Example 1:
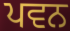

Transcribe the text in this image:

ਪਵਨ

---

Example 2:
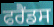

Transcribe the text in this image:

ਫਰੈਂਡਸ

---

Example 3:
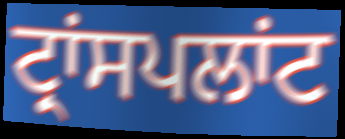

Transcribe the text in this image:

ਟ੍ਰਾਂਸਪਲਾਂਟ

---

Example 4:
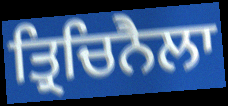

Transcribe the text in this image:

ਤ੍ਰਿਚਿਨੈਲਾ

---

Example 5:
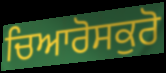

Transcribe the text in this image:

ਚਿਆਰੋਸਕੁਰੋ